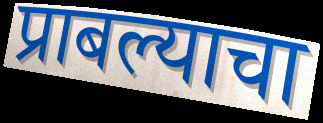
प्राबल्याचा